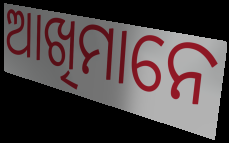
ଆଖିମାନେ